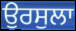
ਉਰਸੁਲਾ